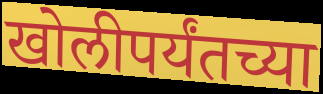
खोलीपर्यंतच्या